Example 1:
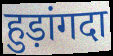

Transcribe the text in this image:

हुड़ांगदा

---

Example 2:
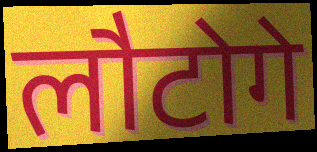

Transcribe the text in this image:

लौटोगे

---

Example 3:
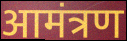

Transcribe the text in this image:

आमंत्रण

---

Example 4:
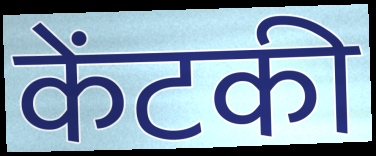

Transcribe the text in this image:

केंटकी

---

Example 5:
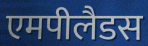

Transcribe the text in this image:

एमपीलैडस